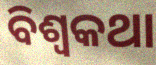
ବିଶ୍ୱକଥା